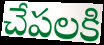
చేపలకి